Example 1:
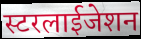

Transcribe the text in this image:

स्टरलाईजेशन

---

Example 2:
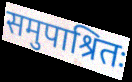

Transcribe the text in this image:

समुपाश्रितः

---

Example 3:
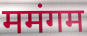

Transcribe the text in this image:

ममंगम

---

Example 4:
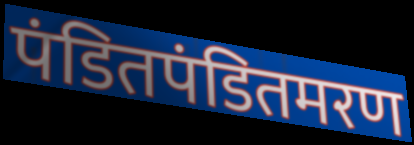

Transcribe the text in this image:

पंडितपंडितमरण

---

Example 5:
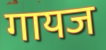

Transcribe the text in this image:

गायज